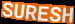
SURESH